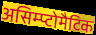
असिम्प्टोमैटिक